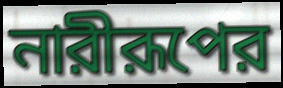
নারীরূপের